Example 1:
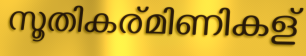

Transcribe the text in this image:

സൂതികര്മിണികള്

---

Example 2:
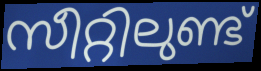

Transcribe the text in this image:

സീറ്റിലുണ്ട്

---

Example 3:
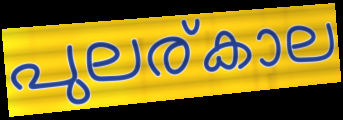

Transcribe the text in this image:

പുലര്കാല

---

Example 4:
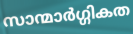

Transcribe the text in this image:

സാന്മാർഗ്ഗികത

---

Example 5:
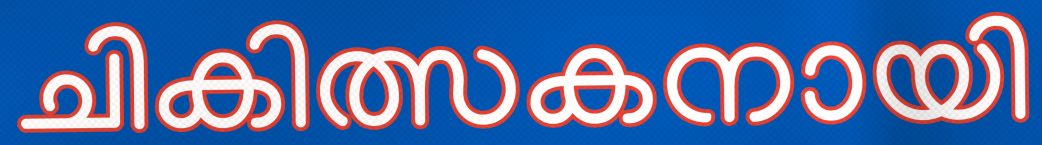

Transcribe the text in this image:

ചികിത്സകനായി